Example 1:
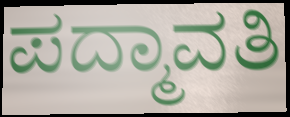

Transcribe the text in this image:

ಪದ್ಮಾವತಿ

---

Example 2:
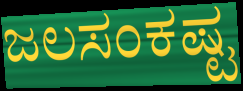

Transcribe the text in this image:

ಜಲಸಂಕಷ್ಟ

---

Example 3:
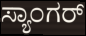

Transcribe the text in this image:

ಸ್ಯಾಂಗರ್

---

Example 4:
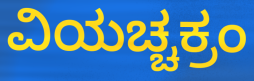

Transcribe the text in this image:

ವಿಯಚ್ಚಕ್ರಂ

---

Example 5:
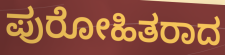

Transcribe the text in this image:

ಪುರೋಹಿತರಾದ